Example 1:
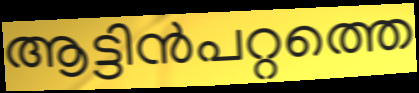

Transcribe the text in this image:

ആട്ടിൻപറ്റത്തെ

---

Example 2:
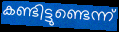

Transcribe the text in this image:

കണ്ടിട്ടുണ്ടെന്ന്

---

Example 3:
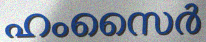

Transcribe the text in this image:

ഹംസൈർ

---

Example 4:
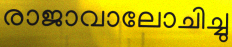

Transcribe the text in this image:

രാജാവാലോചിച്ചു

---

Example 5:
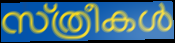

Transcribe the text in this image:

സ്‌ത്രീകൾ